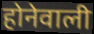
होनेवाली